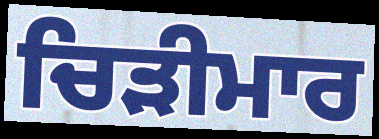
ਚਿੜੀਮਾਰ